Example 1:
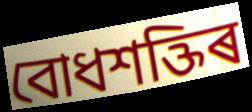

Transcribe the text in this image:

বোধশক্তিৰ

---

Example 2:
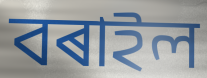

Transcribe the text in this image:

বৰাইল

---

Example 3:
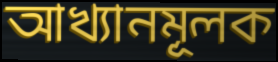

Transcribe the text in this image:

আখ্যানমূলক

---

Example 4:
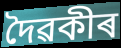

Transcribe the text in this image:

দৈৱকীৰ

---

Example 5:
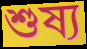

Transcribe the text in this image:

শুষ্য